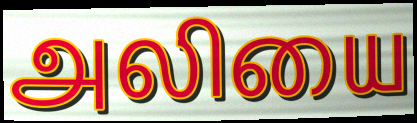
அலியை